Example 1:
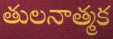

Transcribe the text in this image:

తులనాత్మక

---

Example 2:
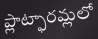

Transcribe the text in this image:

ప్లాట్ఫారమ్లలో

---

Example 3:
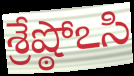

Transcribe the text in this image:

శ్రేష్ఠోఽసి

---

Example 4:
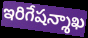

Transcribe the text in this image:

ఇరిగేషన్శాఖ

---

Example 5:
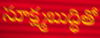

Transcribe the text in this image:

సూక్ష్మబుద్ధితో